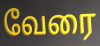
வேரை